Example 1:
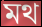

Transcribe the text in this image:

মথ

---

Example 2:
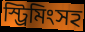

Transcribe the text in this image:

স্ট্রিমিংসহ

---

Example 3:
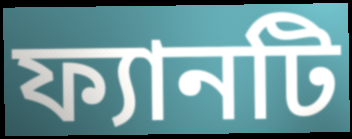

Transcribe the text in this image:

ফ্যানটি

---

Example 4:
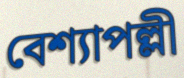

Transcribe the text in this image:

বেশ্যাপল্লী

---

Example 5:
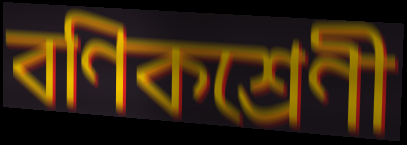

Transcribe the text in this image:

বণিকশ্রেণী